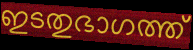
ഇടതുഭാഗത്ത്